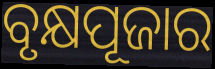
ବୃକ୍ଷପୂଜାର